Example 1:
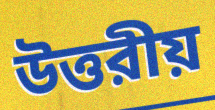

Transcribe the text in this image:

উত্তরীয়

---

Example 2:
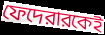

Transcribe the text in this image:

ফেদেরারকেই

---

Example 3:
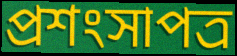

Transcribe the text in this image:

প্রশংসাপত্র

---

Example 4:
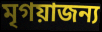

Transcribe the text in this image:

মৃগয়াজন্য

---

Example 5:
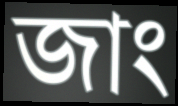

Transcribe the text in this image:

জাং